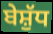
ਬੇਸ਼ੁੱਧ